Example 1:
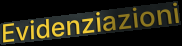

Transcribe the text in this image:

Evidenziazioni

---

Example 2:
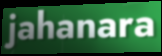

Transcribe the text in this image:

jahanara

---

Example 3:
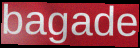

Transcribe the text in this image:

bagade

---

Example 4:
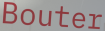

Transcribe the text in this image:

Bouter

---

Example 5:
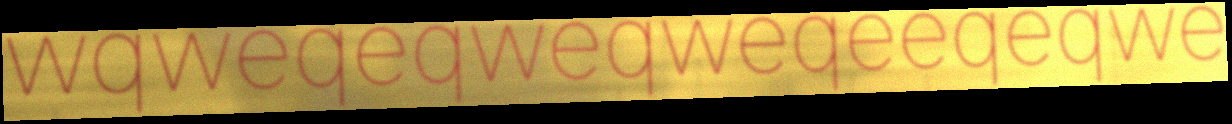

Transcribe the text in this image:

wqweqeqweqweqeeqeqwe